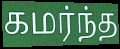
கமர்ந்த